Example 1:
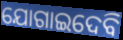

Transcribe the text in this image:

ଯୋଗାଇଦେବି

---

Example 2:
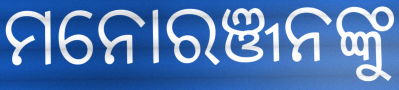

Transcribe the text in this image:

ମନୋରଞ୍ଜନଙ୍କୁ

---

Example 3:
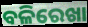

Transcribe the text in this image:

ବଳିରେଖା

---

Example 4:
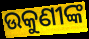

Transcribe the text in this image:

ଉକୁଣୀଙ୍କ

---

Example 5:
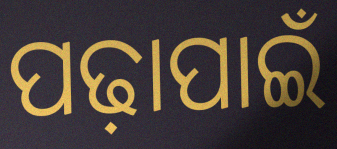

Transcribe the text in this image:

ପଢ଼ାପାଇଁ